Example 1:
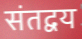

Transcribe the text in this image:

संतद्वय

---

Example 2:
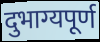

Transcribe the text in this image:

दुभाग्यपूर्ण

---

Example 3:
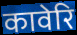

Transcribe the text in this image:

कावेरि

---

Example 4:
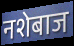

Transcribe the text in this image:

नशेबाज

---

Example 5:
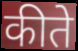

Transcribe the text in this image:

कीते